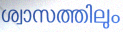
ശ്വാസത്തിലും